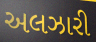
અલઝારી